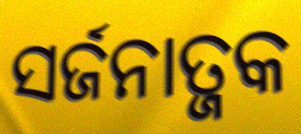
ସର୍ଜନାତ୍ଜକ